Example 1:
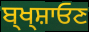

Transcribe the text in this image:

ਬ੍ਖ੍ਸ਼ਾਓਣ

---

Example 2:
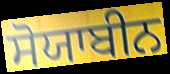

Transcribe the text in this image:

ਸੋਯਾਬੀਨ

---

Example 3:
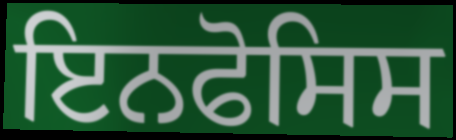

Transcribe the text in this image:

ਇਨਫੋਸਿਸ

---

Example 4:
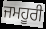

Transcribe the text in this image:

ਜਮਹੂਰੀ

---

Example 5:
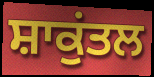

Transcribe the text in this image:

ਸ਼ਾਕੁਂਤਲ